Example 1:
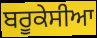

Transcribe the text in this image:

ਬਰੂਕੇਸੀਆ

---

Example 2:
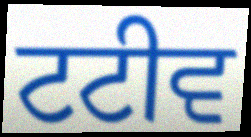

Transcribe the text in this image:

ਟਟੀਵ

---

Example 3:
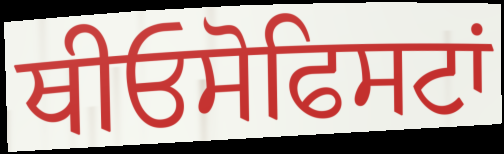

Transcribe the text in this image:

ਥੀਓਸੋਫਿਸਟਾਂ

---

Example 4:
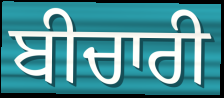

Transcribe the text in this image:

ਬੀਚਾਰੀ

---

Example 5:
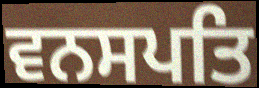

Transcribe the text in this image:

ਵਨਸਪਤਿ